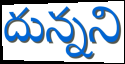
దున్నని